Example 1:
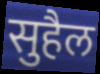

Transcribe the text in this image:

सुहैल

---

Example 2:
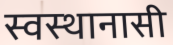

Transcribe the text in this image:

स्वस्थानासी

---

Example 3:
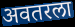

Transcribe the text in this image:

अवतरला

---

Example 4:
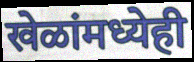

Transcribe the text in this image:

खेळांमध्येही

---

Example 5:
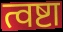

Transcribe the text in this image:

त्वष्टा